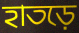
হাতড়ে